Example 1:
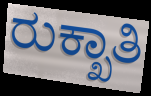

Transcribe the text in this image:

ರುಕ್ಖಾತಿ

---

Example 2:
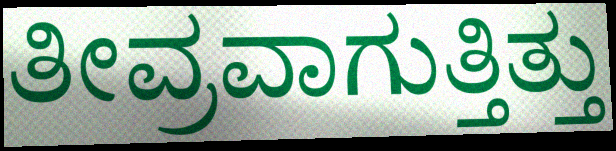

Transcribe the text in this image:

ತೀವ್ರವಾಗುತ್ತಿತ್ತು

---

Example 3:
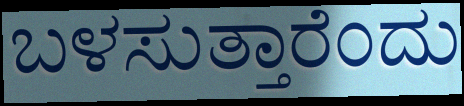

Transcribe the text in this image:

ಬಳಸುತ್ತಾರೆಂದು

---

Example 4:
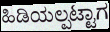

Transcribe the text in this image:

ಹಿಡಿಯಲ್ಪಟ್ಟಾಗ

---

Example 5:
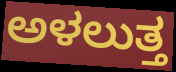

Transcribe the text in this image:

ಅಳಲುತ್ತ